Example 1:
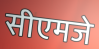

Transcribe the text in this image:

सीएमजे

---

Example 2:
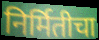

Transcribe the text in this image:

निर्मितीचा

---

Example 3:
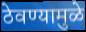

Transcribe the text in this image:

ठेवण्यामुळे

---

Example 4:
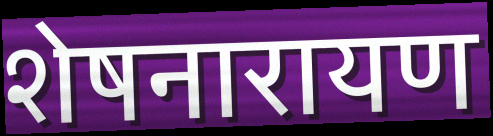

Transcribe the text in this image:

शेषनारायण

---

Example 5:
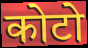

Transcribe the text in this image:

कोटो